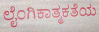
ಲೈಂಗಿಕಾತ್ಮಕತೆಯ